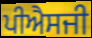
ਪੀਐਸਜੀ